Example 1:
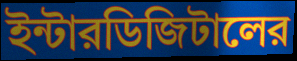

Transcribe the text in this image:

ইন্টারডিজিটালের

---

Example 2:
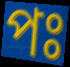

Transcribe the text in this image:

পঃ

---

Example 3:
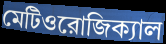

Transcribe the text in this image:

মেটিওরোজিক্যাল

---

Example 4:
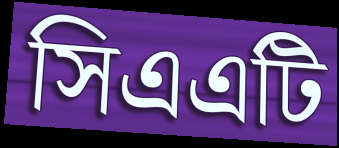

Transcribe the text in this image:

সিএএটি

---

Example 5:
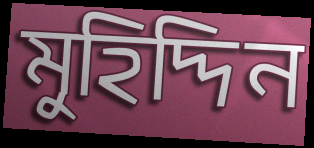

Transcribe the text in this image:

মুহিদ্দিন